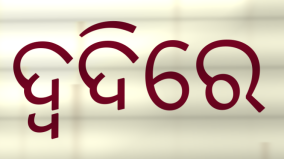
ଦ୍ଵଦିରେ